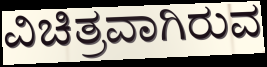
ವಿಚಿತ್ರವಾಗಿರುವ